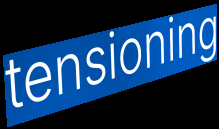
tensioning